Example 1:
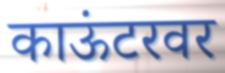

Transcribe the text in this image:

काऊंटरवर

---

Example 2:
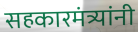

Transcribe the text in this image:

सहकारमंत्र्यांनी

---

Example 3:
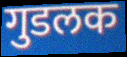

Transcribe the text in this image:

गुडलक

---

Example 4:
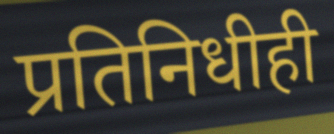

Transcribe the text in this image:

प्रतिनिधीही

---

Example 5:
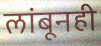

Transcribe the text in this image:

लांबूनही